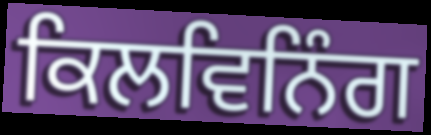
ਕਿਲਵਿਨਿੰਗ